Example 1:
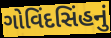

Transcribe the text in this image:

ગોવિંદસિંહનું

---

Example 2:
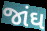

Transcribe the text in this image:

જાંઘ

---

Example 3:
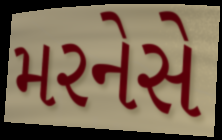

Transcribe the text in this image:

મરનેસે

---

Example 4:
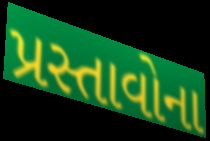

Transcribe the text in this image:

પ્રસ્તાવોના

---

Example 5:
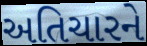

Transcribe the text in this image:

અતિચારને